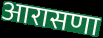
आरासणा